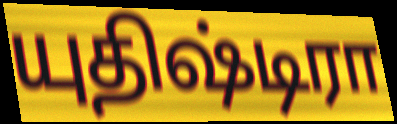
யுதிஷ்டிரா